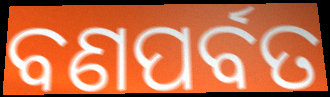
ବଣପର୍ବତ